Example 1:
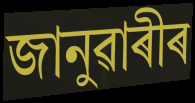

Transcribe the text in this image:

জানুৱাৰীৰ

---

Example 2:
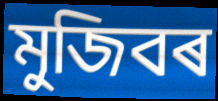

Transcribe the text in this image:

মুজিবৰ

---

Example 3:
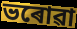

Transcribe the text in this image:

ভৰোৱা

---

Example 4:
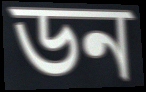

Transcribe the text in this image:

ডন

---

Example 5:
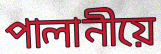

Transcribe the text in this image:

পালানীয়ে